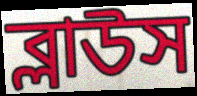
ব্লাউস